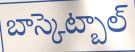
బాస్కెట్బాల్